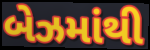
બેઝમાંથી